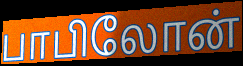
பாபிலோன்